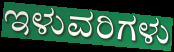
ಇಳುವರಿಗಳು